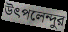
উৎপলেন্দুর